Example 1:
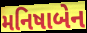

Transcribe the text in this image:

મનિષાબેન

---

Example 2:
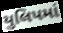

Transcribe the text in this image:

યુલિપમાં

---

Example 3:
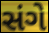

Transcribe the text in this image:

સંગે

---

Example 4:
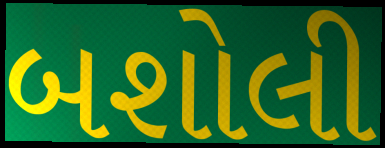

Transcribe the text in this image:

બશોલી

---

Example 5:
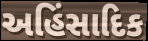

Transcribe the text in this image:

અહિંસાદિક